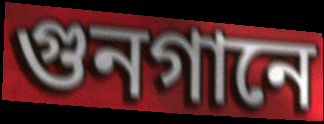
গুনগানে